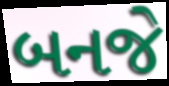
બનજે